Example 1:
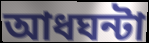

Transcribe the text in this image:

আধঘন্টা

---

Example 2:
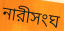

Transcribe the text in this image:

নারীসংঘ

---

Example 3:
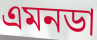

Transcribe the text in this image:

এমনডা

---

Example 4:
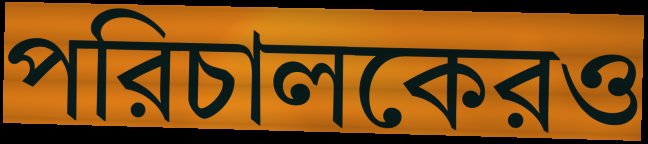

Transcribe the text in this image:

পরিচালকেরও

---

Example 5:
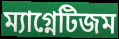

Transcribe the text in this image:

ম্যাগ্নেটিজম